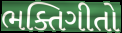
ભક્તિગીતો